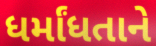
ધર્માંધતાને